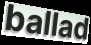
ballad